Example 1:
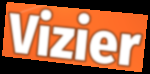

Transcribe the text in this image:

Vizier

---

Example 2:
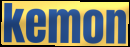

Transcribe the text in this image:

kemon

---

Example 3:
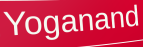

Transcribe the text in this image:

Yoganand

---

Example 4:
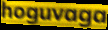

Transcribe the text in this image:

hoguvaga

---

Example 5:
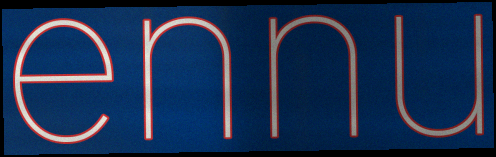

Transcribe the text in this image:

ennu